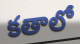
కతాలో